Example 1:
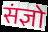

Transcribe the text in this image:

संज्ञो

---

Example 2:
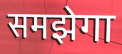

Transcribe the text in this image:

समझेगा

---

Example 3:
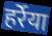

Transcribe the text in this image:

हर्रेया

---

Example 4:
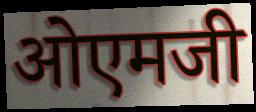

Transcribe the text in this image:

ओएमजी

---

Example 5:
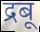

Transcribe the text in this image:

द्रबू